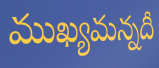
ముఖ్యమన్నదీ